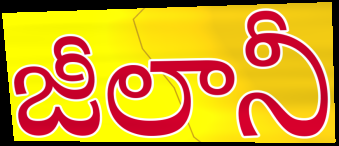
జీలానీ